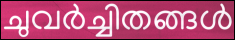
ചുവർച്ചിതങ്ങൾ